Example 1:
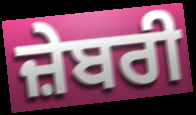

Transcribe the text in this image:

ਜ਼ੇਬਰੀ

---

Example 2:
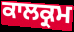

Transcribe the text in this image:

ਕਾਲਕ੍ਰਮ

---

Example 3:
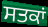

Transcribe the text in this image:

ਸਤਕਾਂ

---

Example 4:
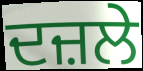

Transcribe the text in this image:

ਦਜ਼ਲੇ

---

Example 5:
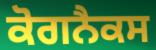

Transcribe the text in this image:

ਕੋਗਨੈਕਸ